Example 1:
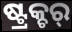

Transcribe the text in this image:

ଷ୍ଟ୍ରକ୍ଚର୍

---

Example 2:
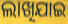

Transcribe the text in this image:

ଲାଖିଯାଇ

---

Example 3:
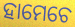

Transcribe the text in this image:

ହାମେଚେ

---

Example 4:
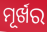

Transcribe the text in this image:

ମୂର୍ଖର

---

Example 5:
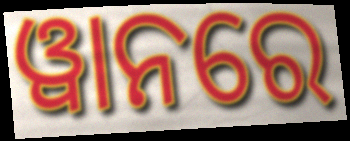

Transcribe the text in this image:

ୱାନରେ